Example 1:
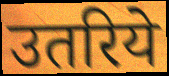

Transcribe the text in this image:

उतरिये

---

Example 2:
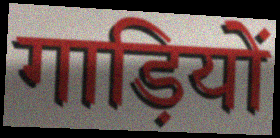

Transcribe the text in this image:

गाड़ियों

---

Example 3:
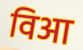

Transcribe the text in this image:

विआ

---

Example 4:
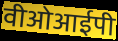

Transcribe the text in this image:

वीओआईपी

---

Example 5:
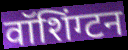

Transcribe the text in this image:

वॉशिंग्टन